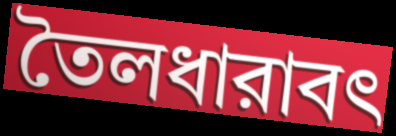
তৈলধারাবৎ